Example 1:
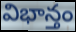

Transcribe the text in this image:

విభాన్తం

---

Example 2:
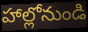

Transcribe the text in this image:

హాల్లోనుండి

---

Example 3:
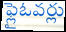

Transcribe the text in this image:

ఫ్లైఓవర్లు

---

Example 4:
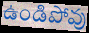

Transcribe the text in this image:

ఉండిపోవు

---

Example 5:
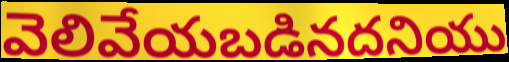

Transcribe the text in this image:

వెలివేయబడినదనియు